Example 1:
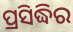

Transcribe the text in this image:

ପ୍ରସିଦ୍ଧିର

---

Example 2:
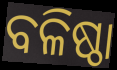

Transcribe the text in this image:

ବଳିଷ୍ଠା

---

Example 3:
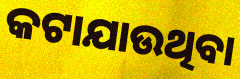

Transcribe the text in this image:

କଟାଯାଉଥିବା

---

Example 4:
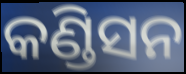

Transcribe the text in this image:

କଣ୍ଡିସନ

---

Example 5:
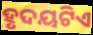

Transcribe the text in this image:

ହୃଦୟଟିଏ